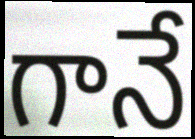
గానే